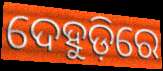
ଦେହୁଡ଼ିରେ